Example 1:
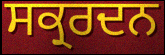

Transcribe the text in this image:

ਸਕ੍ਰਰਦਨ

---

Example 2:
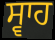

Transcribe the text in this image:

ਸ੍ਵਾਹ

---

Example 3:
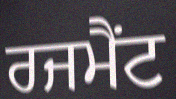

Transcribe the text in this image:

ਰਜਮੈਂਟ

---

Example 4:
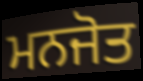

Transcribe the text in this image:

ਮਨਜੋਤ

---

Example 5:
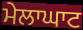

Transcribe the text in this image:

ਮੇਲਾਘਾਟ